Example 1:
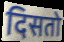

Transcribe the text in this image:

दिसतो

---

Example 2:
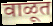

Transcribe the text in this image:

वाळूत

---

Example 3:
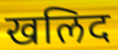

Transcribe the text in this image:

खलिद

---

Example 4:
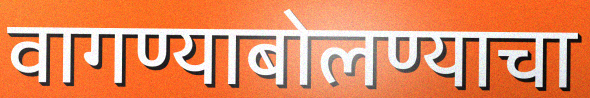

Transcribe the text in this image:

वागण्याबोलण्याचा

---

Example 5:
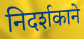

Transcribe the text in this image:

निदर्शकाने